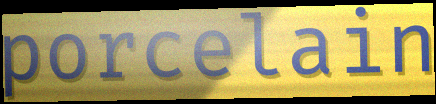
porcelain